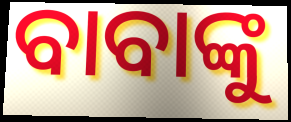
ବାବାଙ୍କୁ